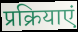
प्रक्रियाएं